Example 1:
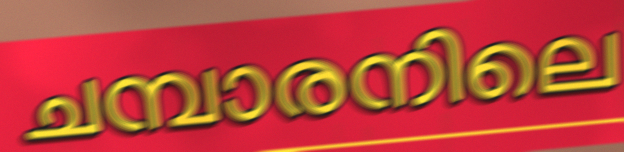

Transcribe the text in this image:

ചമ്പാരനിലെ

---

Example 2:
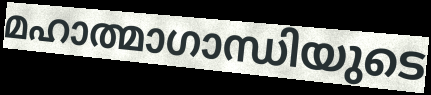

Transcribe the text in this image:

മഹാത്മാഗാന്ധിയുടെ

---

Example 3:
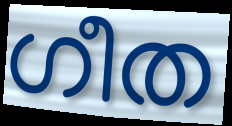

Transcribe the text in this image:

ഗീത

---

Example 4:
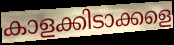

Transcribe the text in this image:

കാളക്കിടാക്കളെ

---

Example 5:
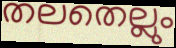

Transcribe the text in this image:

തലതെല്ലും